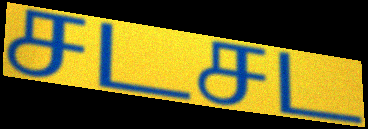
சடசட